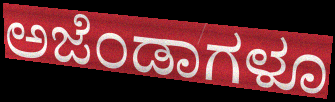
ಅಜೆಂಡಾಗಳೂ